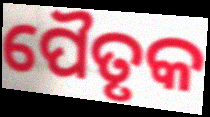
ପୈତୃକ